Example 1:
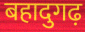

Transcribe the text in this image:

बहादुगढ़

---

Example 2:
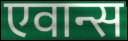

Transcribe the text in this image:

एवान्स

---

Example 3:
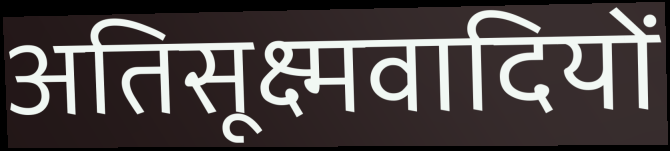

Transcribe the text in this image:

अतिसूक्ष्मवादियों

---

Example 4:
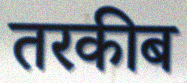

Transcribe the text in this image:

तरकीब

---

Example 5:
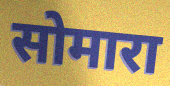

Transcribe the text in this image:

सोमारा